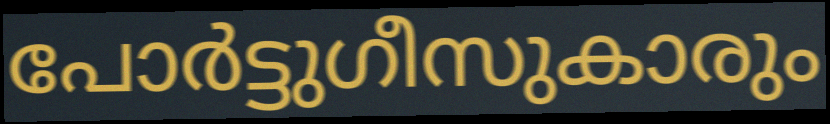
പോർട്ടുഗീസുകാരും